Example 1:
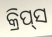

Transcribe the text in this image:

କ୍ରିପ୍‍ସ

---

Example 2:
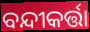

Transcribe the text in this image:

ବନ୍ଦୀକର୍ତ୍ତା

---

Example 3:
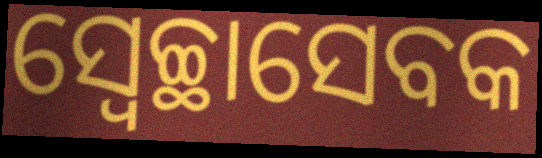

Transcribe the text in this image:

ସ୍ୱେଚ୍ଛାସେବକ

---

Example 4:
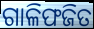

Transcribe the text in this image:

ଗାଳିଫଜିତ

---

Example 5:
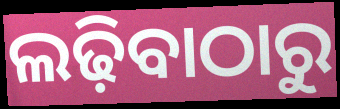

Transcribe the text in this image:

ଲଢ଼ିବାଠାରୁ